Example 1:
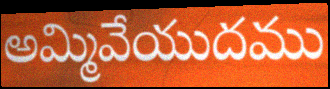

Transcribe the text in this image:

అమ్మివేయుదము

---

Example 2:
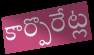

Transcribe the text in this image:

కార్పొరేట్ల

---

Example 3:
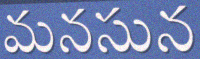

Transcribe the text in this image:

మనసున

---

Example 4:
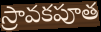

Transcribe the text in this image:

స్రావకపూత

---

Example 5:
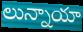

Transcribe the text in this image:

లున్నాయా